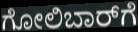
ಗೋಲಿಬಾರ್‌ಗೆ